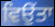
ਵਿਉਂਤਾ